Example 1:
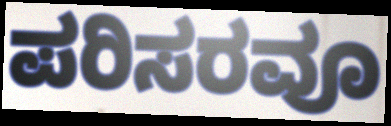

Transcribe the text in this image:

ಪರಿಸರವೂ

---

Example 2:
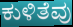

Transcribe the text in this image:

ಕುಳಿತೆವು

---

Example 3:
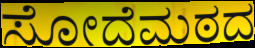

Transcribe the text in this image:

ಸೋದೆಮಠದ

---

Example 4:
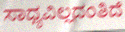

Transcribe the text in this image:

ಸಾಧ್ಯವಿಲ್ಲದಂತಿದೆ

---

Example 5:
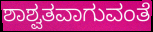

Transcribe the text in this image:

ಶಾಶ್ವತವಾಗುವಂತೆ